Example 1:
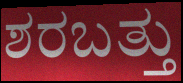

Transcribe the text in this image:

ಶರಬತ್ತು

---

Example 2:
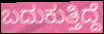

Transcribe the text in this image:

ಬದುಕುತ್ತಿದ್ದೆ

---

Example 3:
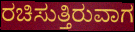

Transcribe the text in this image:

ರಚಿಸುತ್ತಿರುವಾಗ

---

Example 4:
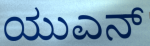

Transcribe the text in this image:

ಯುಎನ್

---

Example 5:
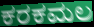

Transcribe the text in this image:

ಕರಕಮಲ